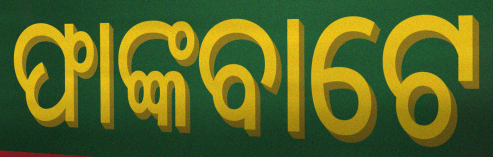
ଫାଙ୍କବାଟେ